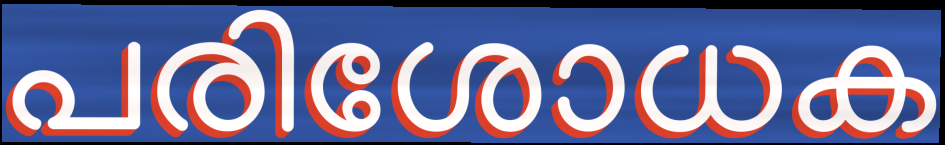
പരിശോധക